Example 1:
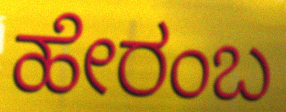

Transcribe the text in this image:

ಹೇರಂಬ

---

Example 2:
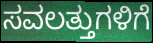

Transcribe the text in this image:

ಸವಲತ್ತುಗಳಿಗೆ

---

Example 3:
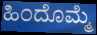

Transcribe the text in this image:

ಹಿಂದೊಮ್ಮೆ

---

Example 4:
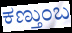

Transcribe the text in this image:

ಕಣ್ತುಂಬ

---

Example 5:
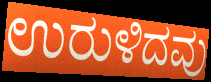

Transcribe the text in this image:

ಉರುಳಿದವು